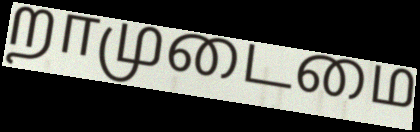
றாமுடைமை